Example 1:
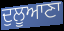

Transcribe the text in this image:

ਦੁਲੂਆਣਾ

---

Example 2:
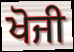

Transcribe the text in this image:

ਖੋਜੀ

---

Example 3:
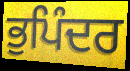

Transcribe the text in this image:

ਭੁਪਿੰਦਰ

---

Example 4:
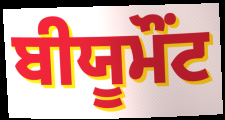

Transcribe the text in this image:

ਬੀਯੂਮੌਂਟ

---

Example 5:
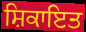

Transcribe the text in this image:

ਸ਼ਿਕਾਇਤ